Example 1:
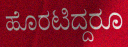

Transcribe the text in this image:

ಹೊರಟಿದ್ದರೂ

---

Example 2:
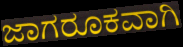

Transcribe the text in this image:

ಜಾಗರೂಕವಾಗಿ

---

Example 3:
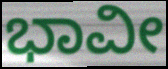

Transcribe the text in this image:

ಭಾವೀ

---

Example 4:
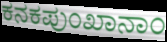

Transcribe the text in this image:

ಕನಕಪುಂಖಾನಾಂ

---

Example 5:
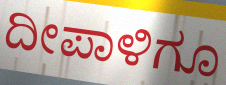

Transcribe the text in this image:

ದೀಪಾಳಿಗೂ